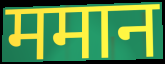
ममान